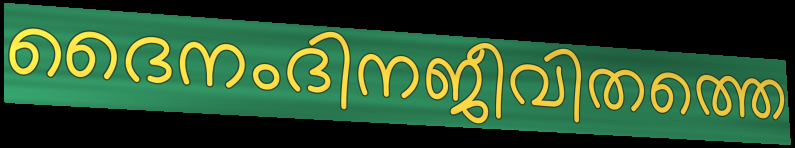
ദൈനംദിനജീവിതത്തെ